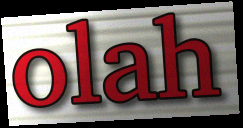
olah